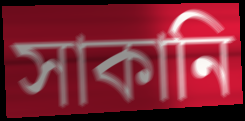
সাকানি